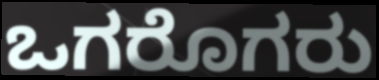
ಒಗರೊಗರು